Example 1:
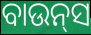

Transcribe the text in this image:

ବାଉନ୍‌ସ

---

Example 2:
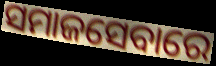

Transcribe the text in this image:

ସମାଜସେବାରେ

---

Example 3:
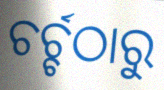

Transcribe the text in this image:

ଚର୍ଚ୍ଚଠାରୁ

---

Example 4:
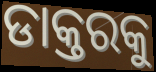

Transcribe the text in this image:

ଡାକ୍ତରକୁ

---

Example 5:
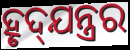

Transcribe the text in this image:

ହୃଦ୍‍ଯନ୍ତ୍ରର